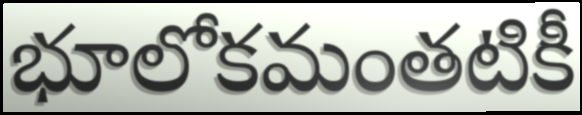
భూలోకమంతటికీ